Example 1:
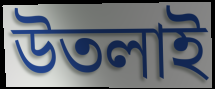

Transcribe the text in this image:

উতলাই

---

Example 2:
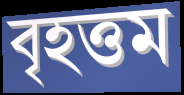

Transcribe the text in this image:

বৃহত্তম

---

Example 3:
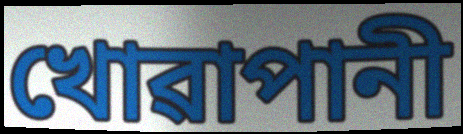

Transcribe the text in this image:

খোৱাপানী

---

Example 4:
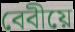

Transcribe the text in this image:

বেবীয়ে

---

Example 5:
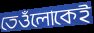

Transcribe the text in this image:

তেওঁলোকেই